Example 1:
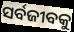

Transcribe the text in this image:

ସର୍ବଜୀବକୁ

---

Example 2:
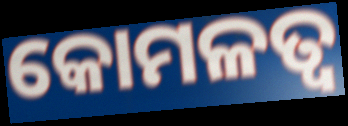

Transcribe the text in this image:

କୋମଳତ୍ୱ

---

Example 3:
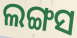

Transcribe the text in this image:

ଲଙ୍ଗସ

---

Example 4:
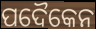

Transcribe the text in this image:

ପଦୈକେନ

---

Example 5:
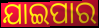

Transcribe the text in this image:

ଯାଇପାର